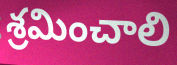
శ్రమించాలి